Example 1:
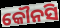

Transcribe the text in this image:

କୌନସି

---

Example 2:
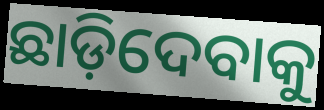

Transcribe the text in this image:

ଛାଡ଼ିଦେବାକୁ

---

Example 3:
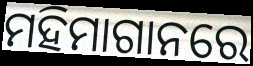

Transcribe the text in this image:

ମହିମାଗାନରେ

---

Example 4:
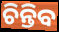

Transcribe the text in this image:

ଚିନ୍ତିବ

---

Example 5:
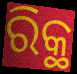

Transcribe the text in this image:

ରିକ୍ଥ